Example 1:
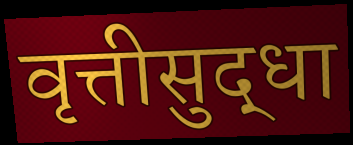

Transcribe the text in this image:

वृत्तीसुद्धा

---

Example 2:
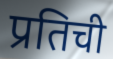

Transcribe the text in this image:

प्रतिची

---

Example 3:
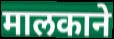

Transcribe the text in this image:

मालकाने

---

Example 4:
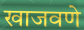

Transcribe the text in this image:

खाजवणे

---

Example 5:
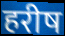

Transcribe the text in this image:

हरीष